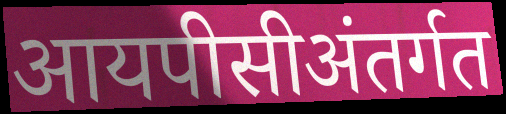
आयपीसीअंतर्गत